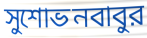
সুশোভনবাবুর